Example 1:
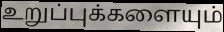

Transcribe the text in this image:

உறுப்புக்களையும்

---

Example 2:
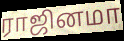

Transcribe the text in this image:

ராஜினமா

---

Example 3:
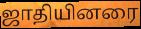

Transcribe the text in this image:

ஜாதியினரை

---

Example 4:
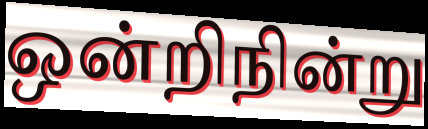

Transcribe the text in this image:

ஒன்றிநின்று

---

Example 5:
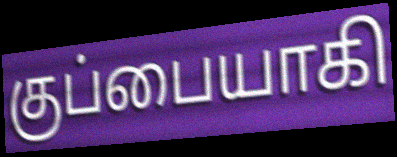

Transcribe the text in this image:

குப்பையாகி